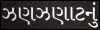
ઝણઝણાટનું